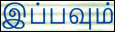
இப்பவும்